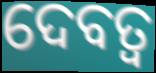
ଦେବତ୍ୱ